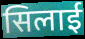
सिलाई